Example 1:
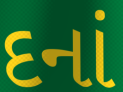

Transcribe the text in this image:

દનાં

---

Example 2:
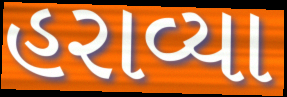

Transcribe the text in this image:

હરાવ્યા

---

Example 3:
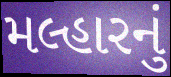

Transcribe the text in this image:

મલ્હારનું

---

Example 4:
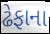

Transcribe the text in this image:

ઢેફાના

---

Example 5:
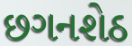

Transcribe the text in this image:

છગનશેઠ